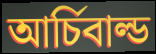
আর্চিবাল্ড